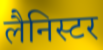
लैनिस्टर